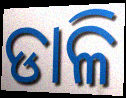
ଡାଳି